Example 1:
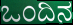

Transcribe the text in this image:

ಒಂದಿನ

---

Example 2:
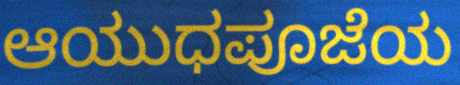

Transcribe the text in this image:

ಆಯುಧಪೂಜೆಯ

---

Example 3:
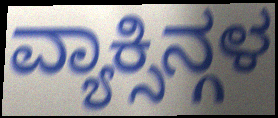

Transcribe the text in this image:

ವ್ಯಾಕ್ಸಿನ್ಗಳ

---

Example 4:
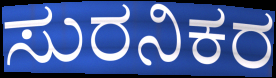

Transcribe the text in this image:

ಸುರನಿಕರ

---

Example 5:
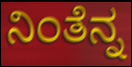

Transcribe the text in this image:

ನಿಂತೆನ್ನ